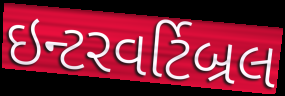
ઇન્ટરવર્ટિબ્રલ